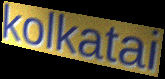
kolkatai